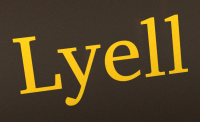
Lyell